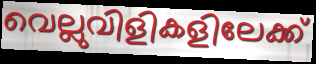
വെല്ലുവിളികളിലേക്ക്